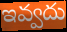
ఇవ్వదు